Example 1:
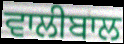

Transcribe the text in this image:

ਵਾਲੀਬਾਲ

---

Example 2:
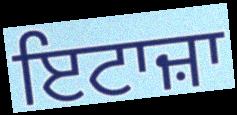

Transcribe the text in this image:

ਇਟਾਜ਼ਾ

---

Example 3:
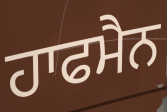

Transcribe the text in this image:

ਹਾਫਮੈਨ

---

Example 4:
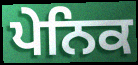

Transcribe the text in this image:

ਪੇਨਿਕ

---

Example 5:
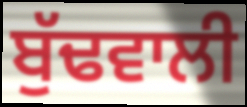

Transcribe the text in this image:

ਬੁੱਢਵਾਲੀ